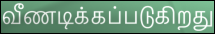
வீணடிக்கப்படுகிறது